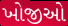
ખોજીઓ